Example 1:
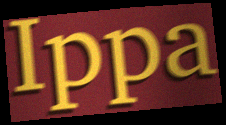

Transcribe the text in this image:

Ippa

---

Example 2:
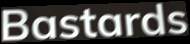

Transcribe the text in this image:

Bastards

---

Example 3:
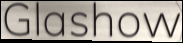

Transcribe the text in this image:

Glashow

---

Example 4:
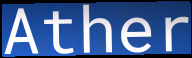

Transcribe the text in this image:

Ather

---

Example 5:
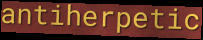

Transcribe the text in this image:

antiherpetic